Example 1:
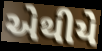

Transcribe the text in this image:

એથીયે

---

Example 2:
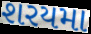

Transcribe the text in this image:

શરયમા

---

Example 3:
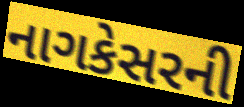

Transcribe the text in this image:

નાગકેસરની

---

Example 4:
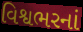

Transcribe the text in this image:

વિશ્વભરનાં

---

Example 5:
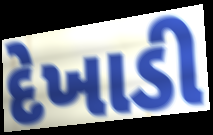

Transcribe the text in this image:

દેખાડી